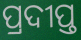
ପ୍ରଦୀପ୍ତ